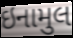
ઇનામુલ